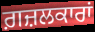
ਗ਼ਜ਼ਲਕਾਰਾਂ